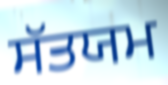
ਸੱਤਯਮ